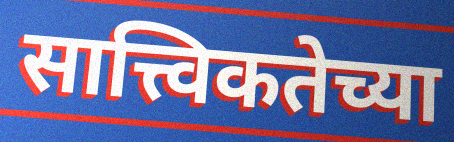
सात्त्विकतेच्या